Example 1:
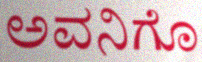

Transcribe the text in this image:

ಅವನಿಗೊ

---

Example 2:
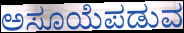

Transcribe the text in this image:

ಅಸೂಯೆಪಡುವ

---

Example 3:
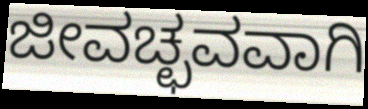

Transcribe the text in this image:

ಜೀವಚ್ಛವವಾಗಿ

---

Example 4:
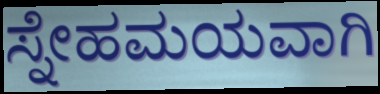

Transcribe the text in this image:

ಸ್ನೇಹಮಯವಾಗಿ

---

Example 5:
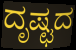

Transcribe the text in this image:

ದೃಷ್ಟದ